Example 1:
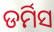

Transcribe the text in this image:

ଡର୍ମିସ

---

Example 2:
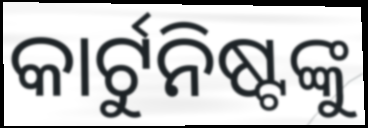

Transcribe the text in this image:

କାର୍ଟୁନିଷ୍ଟଙ୍କୁ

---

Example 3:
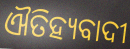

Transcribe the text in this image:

ଐତିହ୍ୟବାଦୀ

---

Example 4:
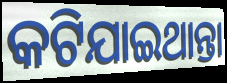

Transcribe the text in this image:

କଟିଯାଇଥାନ୍ତା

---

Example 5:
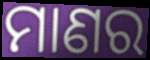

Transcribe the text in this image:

ମାଣର